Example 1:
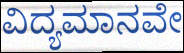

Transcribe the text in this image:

ವಿದ್ಯಮಾನವೇ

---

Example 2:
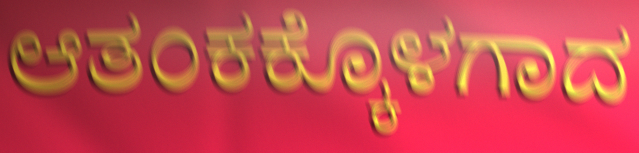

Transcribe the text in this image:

ಆತಂಕಕ್ಕೊಳಗಾದ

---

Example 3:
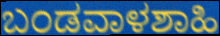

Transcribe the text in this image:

ಬಂಡವಾಳಶಾಹಿ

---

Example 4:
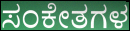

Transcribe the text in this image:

ಸಂಕೇತಗಳ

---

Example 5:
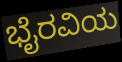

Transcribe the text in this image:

ಭೈರವಿಯ